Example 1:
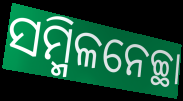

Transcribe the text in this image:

ସମ୍ମିଳନେଚ୍ଛା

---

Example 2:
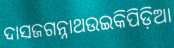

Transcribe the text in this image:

ଦାସଜଗନ୍ନାଥଉଇକିପିଡ଼ିଆ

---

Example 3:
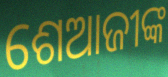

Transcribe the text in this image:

ଶେଆଜୀଙ୍କ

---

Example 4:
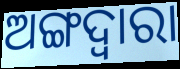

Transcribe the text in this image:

ଅଙ୍ଗଦ୍ଵାରା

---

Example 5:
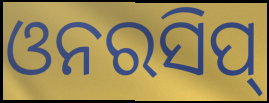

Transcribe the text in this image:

ଓନରସିପ୍